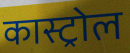
कास्ट्रोल